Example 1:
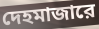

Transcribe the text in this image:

দেহমাজারে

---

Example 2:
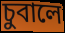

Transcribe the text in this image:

চুবালে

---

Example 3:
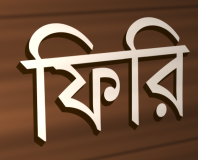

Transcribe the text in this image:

ফিরি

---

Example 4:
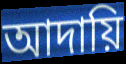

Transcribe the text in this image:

আদায়ি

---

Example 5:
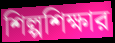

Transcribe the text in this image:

শিল্পশিক্ষার